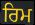
ਰਿਮ